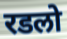
रडलो